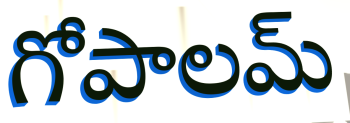
గోపాలమ్